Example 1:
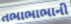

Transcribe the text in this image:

તભાભાભાની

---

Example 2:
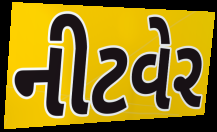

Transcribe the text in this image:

નીટવેર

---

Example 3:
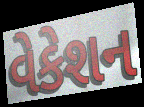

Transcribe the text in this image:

વેકેશન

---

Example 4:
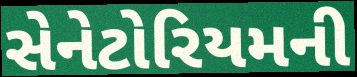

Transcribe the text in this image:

સેનેટોરિયમની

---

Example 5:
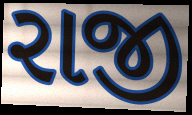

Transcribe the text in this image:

રાજી